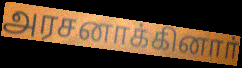
அரசனாக்கினார்